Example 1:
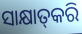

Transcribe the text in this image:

ସାକ୍ଷାତ୍‌କରି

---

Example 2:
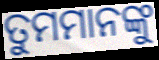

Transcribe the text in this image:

ତୁମମାନଙ୍କୁ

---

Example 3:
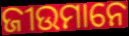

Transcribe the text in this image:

ଜୀଉମାନେ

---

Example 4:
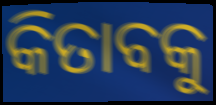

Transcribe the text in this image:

କିତାବକୁ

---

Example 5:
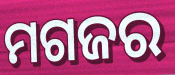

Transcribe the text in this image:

ମଗଜର